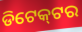
ଡିଟେକ୍‌ଟର